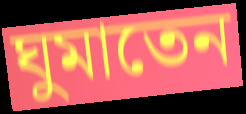
ঘুমাতেন